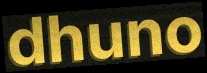
dhuno